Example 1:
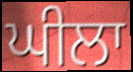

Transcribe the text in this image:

ਘੀਲਾ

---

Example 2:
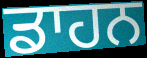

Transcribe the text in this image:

ਡਾਹਨ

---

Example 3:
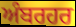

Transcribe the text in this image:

ਅੰਬਰਹਰ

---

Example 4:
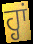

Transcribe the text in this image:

ਹ੍ਹਾਂ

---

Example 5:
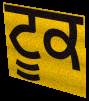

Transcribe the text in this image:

ਟੂਕ